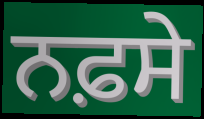
ਨਫ਼ਸੇ